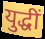
युद्धीं